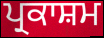
ਪ੍ਰਕਾਸ਼ਮ